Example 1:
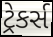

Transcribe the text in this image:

ટ્રેકર્સ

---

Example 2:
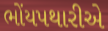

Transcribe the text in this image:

ભોંયપથારીએ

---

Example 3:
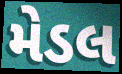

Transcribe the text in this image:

મેડલ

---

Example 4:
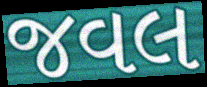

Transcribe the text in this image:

જવલ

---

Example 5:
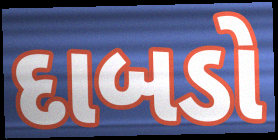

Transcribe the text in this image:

દાબડો